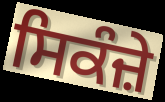
ਸਿਕੰਜ਼ੇ